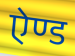
ऐण्ड